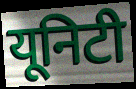
यूनिटी